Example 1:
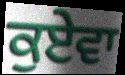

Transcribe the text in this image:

ਕੁਏਵਾ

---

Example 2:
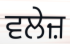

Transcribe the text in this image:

ਵਲੇਜ਼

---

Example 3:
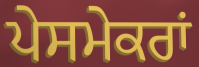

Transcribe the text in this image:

ਪੇਸਮੇਕਰਾਂ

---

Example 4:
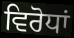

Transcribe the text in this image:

ਵਿਰੋਧਾਂ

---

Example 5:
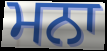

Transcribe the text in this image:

ਮਨਾ